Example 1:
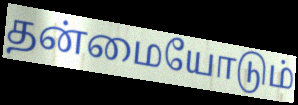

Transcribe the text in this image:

தன்மையோடும்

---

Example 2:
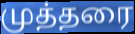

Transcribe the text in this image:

முத்தரை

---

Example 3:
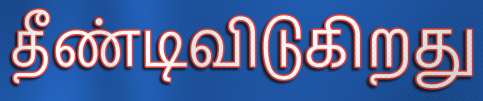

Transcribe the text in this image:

தீண்டிவிடுகிறது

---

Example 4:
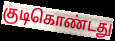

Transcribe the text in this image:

குடிகொண்டது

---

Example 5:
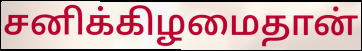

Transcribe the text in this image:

சனிக்கிழமைதான்